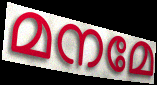
മനമേ